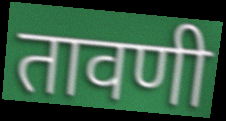
तावणी